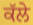
ਕੱਲੇ